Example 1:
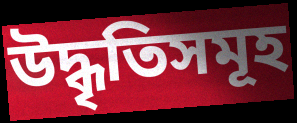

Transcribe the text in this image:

উদ্ধৃতিসমূহ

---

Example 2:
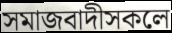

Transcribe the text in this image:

সমাজবাদীসকলে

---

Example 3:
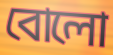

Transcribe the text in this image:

বোলো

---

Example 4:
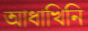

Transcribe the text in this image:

আধাখিনি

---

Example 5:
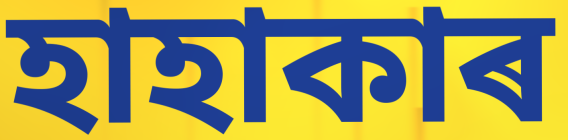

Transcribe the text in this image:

হাহাকাৰ